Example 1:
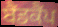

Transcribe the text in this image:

ਬੈਂਡਕੈਂਪ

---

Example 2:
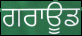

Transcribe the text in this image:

ਗਰਾਊਡ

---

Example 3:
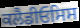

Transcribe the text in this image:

ਕਲੈਡੀਓਸਿਸ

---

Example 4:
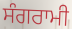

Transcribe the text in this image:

ਸੰਗਰਾਮੀ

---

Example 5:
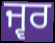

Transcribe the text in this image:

ਜ੍ਵਰ